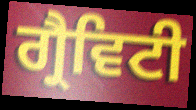
ਗ੍ਰੈਵਿਟੀ